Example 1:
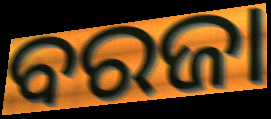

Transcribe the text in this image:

ବରଜା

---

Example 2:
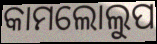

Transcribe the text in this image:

କାମଲୋଲୁପ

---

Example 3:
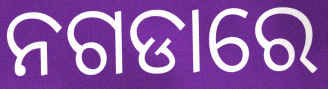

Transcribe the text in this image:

ନଗଡାରେ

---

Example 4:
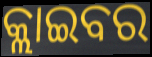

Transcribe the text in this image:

କ୍ଲାଇବର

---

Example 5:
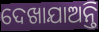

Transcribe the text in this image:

ଦେଖାଯାଅନ୍ତି